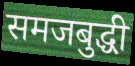
समजबुद्धी